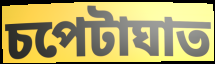
চপেটাঘাত